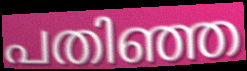
പതിഞ്ഞ